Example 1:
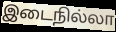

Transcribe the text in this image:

இடைநில்லா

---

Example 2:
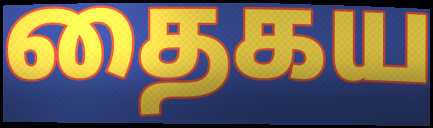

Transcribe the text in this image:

தைகய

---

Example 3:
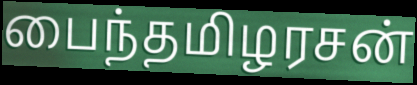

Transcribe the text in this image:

பைந்தமிழரசன்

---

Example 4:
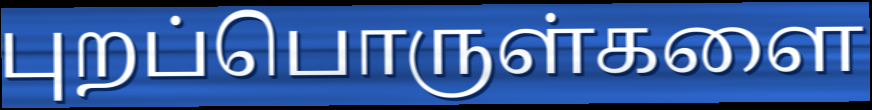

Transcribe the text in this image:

புறப்பொருள்களை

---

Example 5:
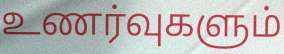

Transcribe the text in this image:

உணர்வுகளும்